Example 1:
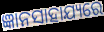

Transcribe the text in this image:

ଜ୍ଞାନସାହାଯ୍ୟରେ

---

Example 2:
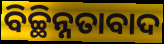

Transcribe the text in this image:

ବିଚ୍ଛିନ୍ନତାବାଦ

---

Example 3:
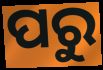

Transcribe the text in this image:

ପରୁ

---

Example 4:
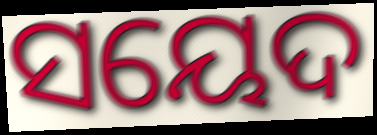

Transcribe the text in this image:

ସୟେଦ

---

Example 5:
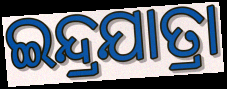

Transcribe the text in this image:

ଇନ୍ଦ୍ରଯାତ୍ରା